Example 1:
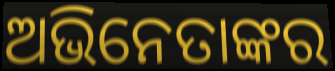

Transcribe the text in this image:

ଅଭିନେତାଙ୍କର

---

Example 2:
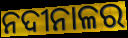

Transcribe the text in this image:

ନଦୀନାଳର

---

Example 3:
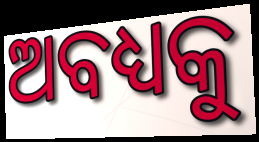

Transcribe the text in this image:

ଅବଧ୍ୟକୁ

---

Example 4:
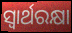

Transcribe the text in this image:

ସ୍ଵାର୍ଥରକ୍ଷା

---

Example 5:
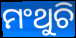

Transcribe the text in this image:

ମଂଥୁଚି